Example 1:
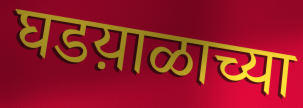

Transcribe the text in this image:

घडय़ाळाच्या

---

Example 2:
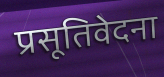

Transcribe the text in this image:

प्रसूतिवेदना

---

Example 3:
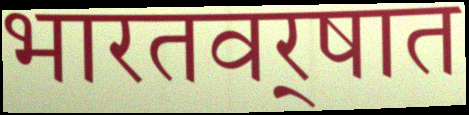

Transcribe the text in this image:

भारतवर्षात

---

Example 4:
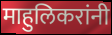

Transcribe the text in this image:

माहुलिकरांनी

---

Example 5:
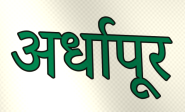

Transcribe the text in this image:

अर्धापूर